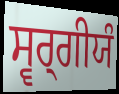
ਸ੍ਵਰ੍ਗੀਯੰ